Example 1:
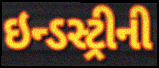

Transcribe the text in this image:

ઇન્ડસ્ટ્રીની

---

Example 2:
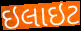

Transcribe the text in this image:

ઇલાઇટ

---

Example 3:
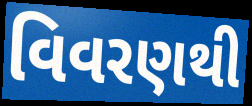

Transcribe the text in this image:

વિવરણથી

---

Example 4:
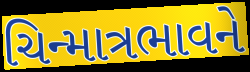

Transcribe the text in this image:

ચિન્માત્રભાવને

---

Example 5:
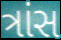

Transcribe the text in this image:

ત્રાંસ